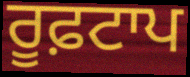
ਰੂਫ਼ਟਾਪ